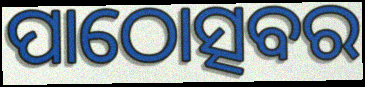
ପାଠୋତ୍ସବର